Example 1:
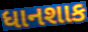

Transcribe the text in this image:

ધાનશાક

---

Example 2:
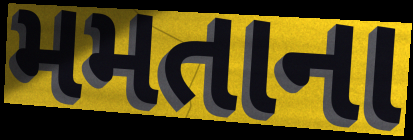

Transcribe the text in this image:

મમતાના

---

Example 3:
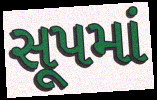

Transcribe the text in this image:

સૂપમાં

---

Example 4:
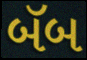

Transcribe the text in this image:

બૅબ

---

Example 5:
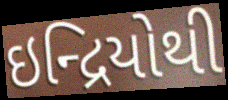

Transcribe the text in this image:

ઇન્દ્રિયોથી